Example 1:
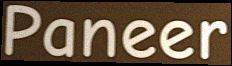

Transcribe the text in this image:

Paneer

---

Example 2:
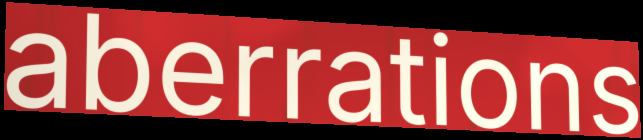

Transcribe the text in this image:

aberrations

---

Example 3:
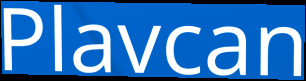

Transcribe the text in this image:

Plavcan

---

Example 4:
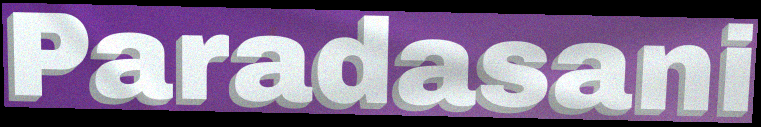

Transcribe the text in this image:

Paradasani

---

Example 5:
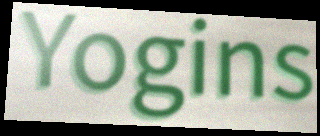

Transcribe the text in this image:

Yogins